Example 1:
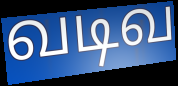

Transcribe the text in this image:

வடிவ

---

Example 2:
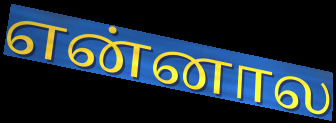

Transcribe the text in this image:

என்னால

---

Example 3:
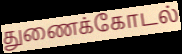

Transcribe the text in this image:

துணைக்கோடல்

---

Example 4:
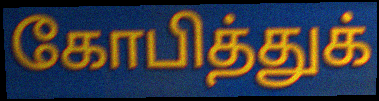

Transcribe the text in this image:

கோபித்துக்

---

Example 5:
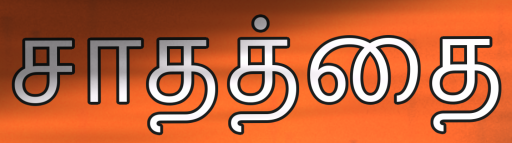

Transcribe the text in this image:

சாதத்தை